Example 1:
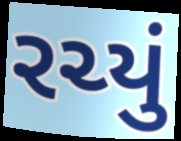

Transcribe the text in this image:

રચ્યું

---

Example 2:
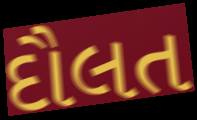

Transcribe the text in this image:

દૌલત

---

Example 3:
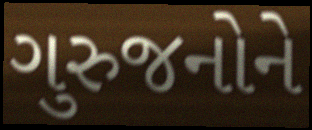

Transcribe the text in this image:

ગુરુજનોને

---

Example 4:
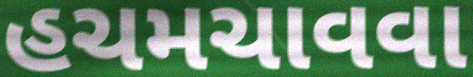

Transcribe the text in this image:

હચમચાવવા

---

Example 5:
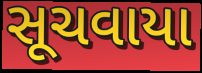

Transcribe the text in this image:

સૂચવાયા